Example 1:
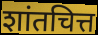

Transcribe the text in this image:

शांतचित्त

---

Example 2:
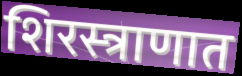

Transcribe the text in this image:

शिरस्त्राणात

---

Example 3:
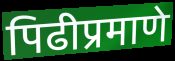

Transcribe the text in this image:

पिढीप्रमाणे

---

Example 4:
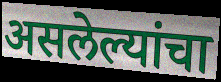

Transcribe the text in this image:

असलेल्यांचा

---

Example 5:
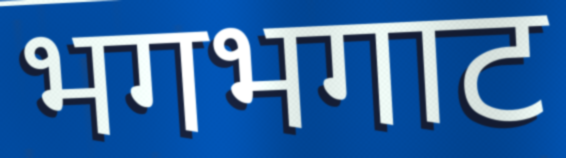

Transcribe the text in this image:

भगभगाट